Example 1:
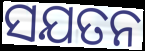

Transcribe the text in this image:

ସଯତନ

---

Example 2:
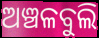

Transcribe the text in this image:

ଅଞ୍ଚଳବୁଲି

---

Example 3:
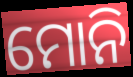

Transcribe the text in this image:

ମୋନି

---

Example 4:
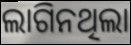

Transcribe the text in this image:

ଲାଗିନଥିଲା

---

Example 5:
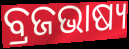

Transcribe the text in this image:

ବ୍ରଜଭାଷ୍ୟ